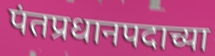
पंतप्रधानपदाच्या